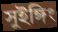
সুইঙ্গিং